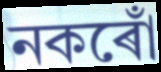
নকৰোঁ